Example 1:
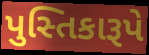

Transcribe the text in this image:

પુસ્તિકારૂપે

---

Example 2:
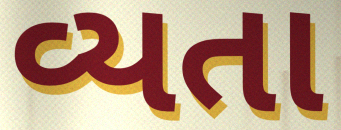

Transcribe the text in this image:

વ્યતા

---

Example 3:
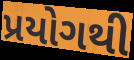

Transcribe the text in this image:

પ્રયોગથી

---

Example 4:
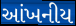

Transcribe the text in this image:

આંખનીય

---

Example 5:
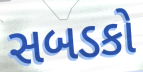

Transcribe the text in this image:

સબડકો